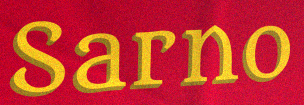
Sarno